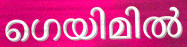
ഗെയിമിൽ